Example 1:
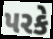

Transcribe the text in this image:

પરકે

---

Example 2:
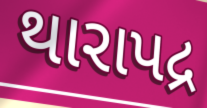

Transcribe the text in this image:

થારાપદ્ર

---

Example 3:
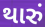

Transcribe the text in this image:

થારું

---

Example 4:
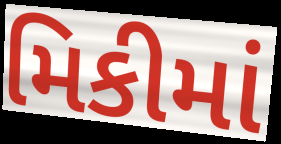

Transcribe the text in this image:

મિકીમાં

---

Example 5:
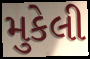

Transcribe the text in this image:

મુકેલી